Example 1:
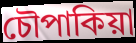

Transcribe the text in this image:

চৌপাকিয়া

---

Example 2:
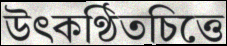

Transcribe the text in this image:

উৎকণ্ঠিতচিত্তে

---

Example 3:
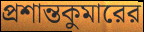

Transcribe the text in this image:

প্রশান্তকুমারের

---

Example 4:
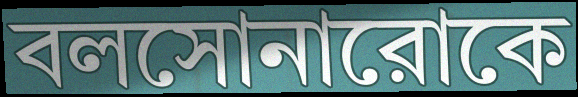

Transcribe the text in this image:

বলসোনারোকে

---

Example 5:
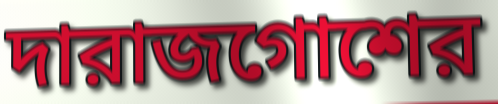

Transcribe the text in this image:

দারাজগোশের